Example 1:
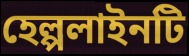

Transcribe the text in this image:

হেল্পলাইনটি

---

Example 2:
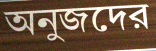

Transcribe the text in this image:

অনুজদের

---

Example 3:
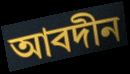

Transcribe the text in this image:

আবদীন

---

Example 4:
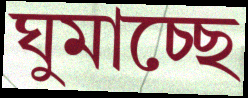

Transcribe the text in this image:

ঘুমাচ্ছে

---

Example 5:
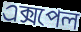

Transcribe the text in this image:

এক্সপেল